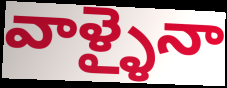
వాళ్ళైనా